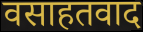
वसाहतवाद